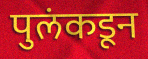
पुलंकडून